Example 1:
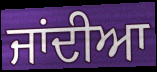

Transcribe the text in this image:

ਜਾਂਦੀਆ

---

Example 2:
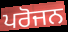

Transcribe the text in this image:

ਪਰੋਜਨ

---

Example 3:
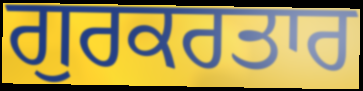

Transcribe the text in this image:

ਗੁਰਕਰਤਾਰ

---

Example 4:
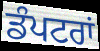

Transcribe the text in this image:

ਡੰਪਟਰਾਂ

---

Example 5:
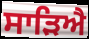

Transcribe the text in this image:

ਸਾੜਿਐ